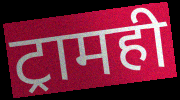
ट्रामही